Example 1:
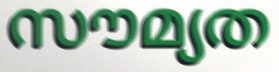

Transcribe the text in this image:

സൗമ്യത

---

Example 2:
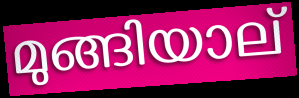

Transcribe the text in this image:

മുങ്ങിയാല്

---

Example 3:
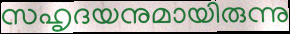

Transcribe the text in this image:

സഹൃദയനുമായിരുന്നു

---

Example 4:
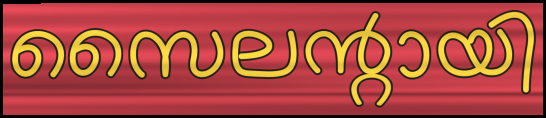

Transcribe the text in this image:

സൈലന്റായി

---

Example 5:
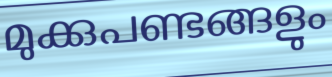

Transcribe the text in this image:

മുക്കുപണ്ടങ്ങളും